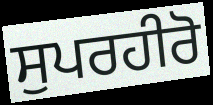
ਸੁਪਰਹੀਰੋ